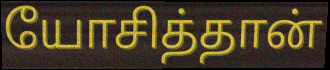
யோசித்தான்